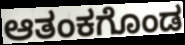
ಆತಂಕಗೊಂಡ